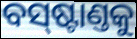
ବସ୍‌ଷ୍ଟାଣ୍ତକୁ